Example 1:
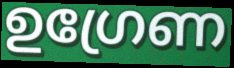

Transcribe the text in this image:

ഉഗ്രേണ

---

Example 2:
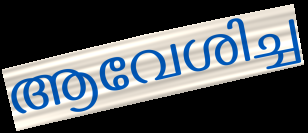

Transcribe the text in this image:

ആവേശിച്ച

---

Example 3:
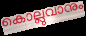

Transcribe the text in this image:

കൊല്ലുവാനും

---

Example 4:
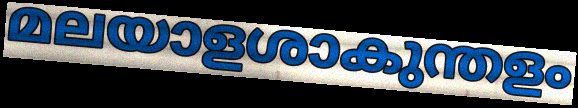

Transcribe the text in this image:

മലയാളശാകുന്തളം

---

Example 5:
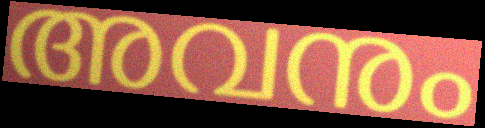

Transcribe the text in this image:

അവനും